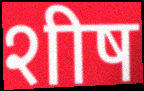
शीष